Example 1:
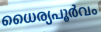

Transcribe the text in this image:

ധൈര്യപൂർവം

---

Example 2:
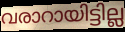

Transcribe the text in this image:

വരാറായിട്ടില്ല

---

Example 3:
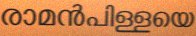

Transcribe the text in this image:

രാമൻപിള്ളയെ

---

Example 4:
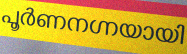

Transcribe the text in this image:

പൂർണനഗ്നയായി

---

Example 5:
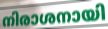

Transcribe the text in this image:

നിരാശനായി